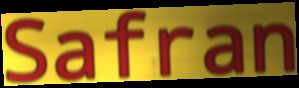
Safran